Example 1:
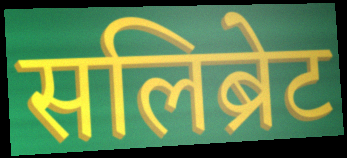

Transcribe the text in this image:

सलिब्रेट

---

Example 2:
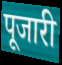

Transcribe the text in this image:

पूजारी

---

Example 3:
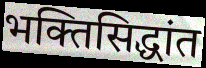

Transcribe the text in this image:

भक्तिसिद्धांत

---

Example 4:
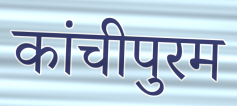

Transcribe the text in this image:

कांचीपुरम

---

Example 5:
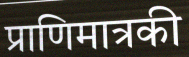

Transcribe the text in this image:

प्राणिमात्रकी